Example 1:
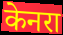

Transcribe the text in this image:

केनरा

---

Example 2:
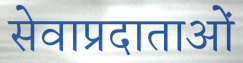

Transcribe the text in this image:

सेवाप्रदाताओं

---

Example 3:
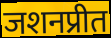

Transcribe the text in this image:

जशनप्रीत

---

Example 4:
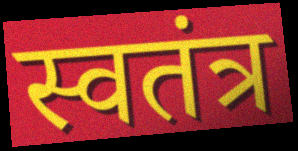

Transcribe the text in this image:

स्वतंत्र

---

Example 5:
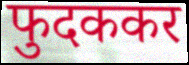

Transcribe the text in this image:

फुदककर